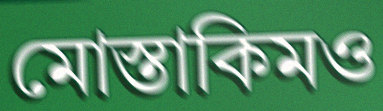
মোস্তাকিমও